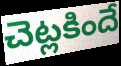
చెట్లకిందే